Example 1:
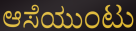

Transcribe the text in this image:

ಆಸೆಯುಂಟು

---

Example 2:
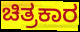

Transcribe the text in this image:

ಚಿತ್ರಕಾರ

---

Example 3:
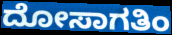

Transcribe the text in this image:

ದೋಸಾಗತಿಂ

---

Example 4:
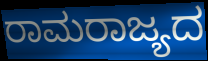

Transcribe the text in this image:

ರಾಮರಾಜ್ಯದ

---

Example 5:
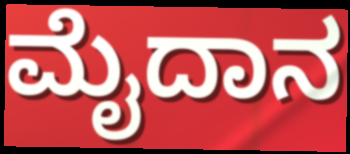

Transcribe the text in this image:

ಮೈದಾನ